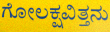
ಗೋಲಕ್ಷವಿತ್ತನು